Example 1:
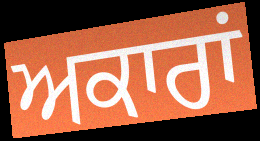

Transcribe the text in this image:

ਅਕਾਰਾਂ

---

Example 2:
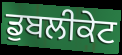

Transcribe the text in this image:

ਡੁਬਲੀਕੇਟ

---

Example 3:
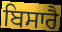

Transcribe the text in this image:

ਬਿਸਾਰੈ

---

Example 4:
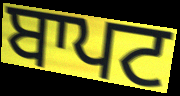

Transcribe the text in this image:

ਬਾਪਟ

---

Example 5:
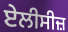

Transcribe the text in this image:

ਏਲੀਸੀਜ਼